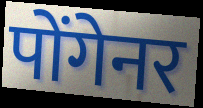
पोंगेनर